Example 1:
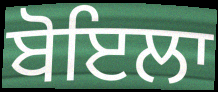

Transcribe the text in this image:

ਬੋਇਲਾ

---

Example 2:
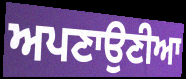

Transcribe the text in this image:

ਅਪਣਾਉਣੀਆ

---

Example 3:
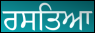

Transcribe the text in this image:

ਰਸਤਿਆ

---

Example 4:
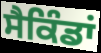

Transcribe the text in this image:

ਸੈਕਿੰਡਾਂ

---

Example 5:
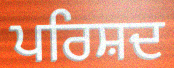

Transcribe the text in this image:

ਪਰਿਸ਼ਦ